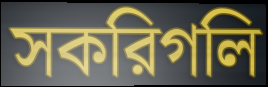
সকরিগলি